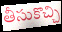
తీసుకొచ్చి